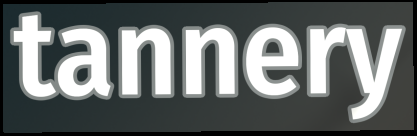
tannery